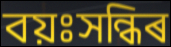
বয়ঃসন্ধিৰ